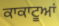
ਕਾਕਾਟੂਆਂ